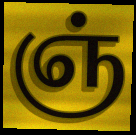
ஞ்